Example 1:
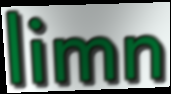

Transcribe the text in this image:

limn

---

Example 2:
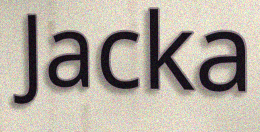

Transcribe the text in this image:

Jacka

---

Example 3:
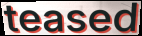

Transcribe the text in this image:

teased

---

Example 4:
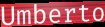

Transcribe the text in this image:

Umberto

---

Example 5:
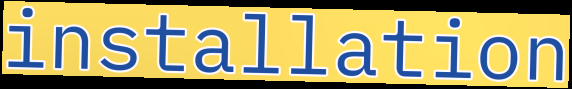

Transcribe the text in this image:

installation